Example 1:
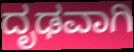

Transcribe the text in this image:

ದೃಢವಾಗಿ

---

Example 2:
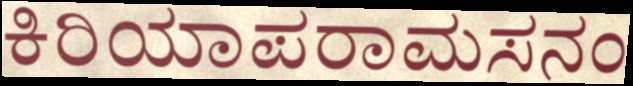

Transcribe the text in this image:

ಕಿರಿಯಾಪರಾಮಸನಂ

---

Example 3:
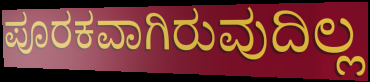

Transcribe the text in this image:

ಪೂರಕವಾಗಿರುವುದಿಲ್ಲ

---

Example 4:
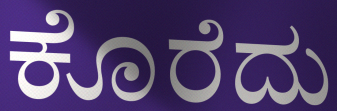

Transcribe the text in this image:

ಕೊರೆದು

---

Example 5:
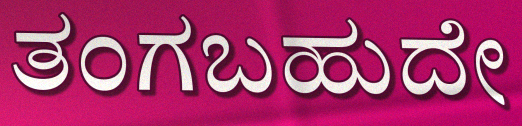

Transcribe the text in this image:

ತಂಗಬಹುದೇ